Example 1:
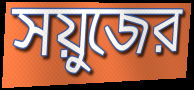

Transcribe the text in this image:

সয়ুজের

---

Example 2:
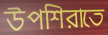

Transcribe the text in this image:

উপশিরাতে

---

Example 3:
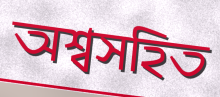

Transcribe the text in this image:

অশ্বসহিত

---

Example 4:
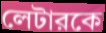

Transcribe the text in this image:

লেটারকে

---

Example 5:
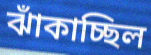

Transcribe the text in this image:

ঝাঁকাচ্ছিল